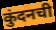
कुंदनची